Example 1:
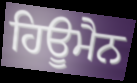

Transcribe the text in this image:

ਹਿਊਮੈਨ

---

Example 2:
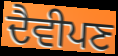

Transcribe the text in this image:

ਦੈਵੀਪਣ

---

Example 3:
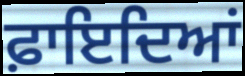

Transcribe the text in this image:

ਫ਼ਾਇਦਿਆਂ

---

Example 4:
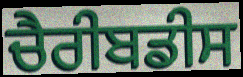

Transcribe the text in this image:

ਚੈਰੀਬਡੀਸ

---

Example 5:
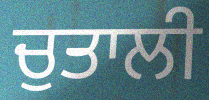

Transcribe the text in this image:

ਚੁਤਾਲੀ